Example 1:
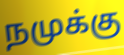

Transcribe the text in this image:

நமுக்கு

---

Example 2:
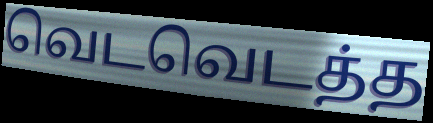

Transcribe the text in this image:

வெடவெடத்த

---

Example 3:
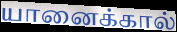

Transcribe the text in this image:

யானைக்கால்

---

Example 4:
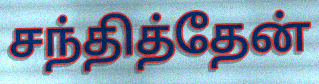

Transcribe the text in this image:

சந்தித்தேன்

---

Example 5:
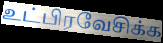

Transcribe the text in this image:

உட்பிரவேசிக்க